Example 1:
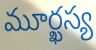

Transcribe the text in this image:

మూర్ఖస్య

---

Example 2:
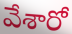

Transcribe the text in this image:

వేశారో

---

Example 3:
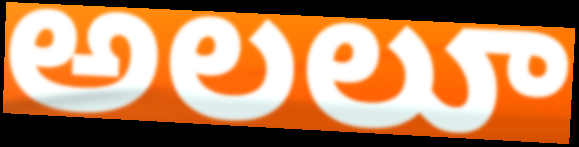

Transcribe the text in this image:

అలలూ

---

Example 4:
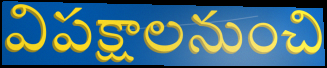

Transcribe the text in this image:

విపక్షాలనుంచి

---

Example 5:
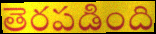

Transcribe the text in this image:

తెరపడింది